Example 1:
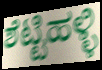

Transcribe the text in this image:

ಶೆಟ್ಟಿಹಳ್ಳಿ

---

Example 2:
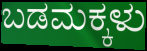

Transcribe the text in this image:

ಬಡಮಕ್ಕಳು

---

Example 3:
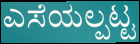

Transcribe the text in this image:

ಎಸೆಯಲ್ಪಟ್ಟ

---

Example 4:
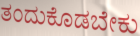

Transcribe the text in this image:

ತಂದುಕೊಡಬೇಕು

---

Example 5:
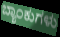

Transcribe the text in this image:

ಬ್ಯಾಂಕುಗಳು